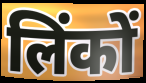
लिंकों